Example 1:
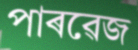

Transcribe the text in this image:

পাৰৱেজ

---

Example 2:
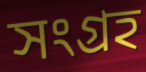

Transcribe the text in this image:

সংগ্ৰহ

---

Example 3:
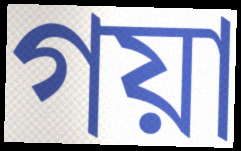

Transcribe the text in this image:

গয়া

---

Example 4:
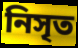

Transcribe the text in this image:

নিসৃত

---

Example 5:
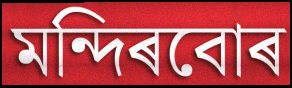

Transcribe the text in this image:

মন্দিৰবোৰ